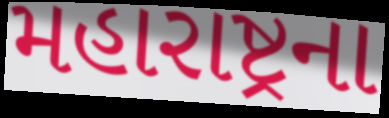
મહારાષ્ટ્રના